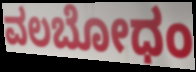
ವಲಬೋಧಂ